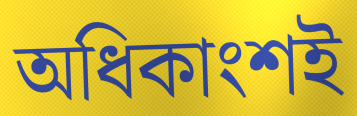
অধিকাংশই